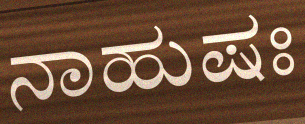
ನಾಹುಷಃ